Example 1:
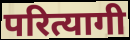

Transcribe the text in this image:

परित्यागी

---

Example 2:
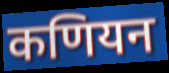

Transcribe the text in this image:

कणियन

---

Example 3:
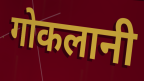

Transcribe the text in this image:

गोकलानी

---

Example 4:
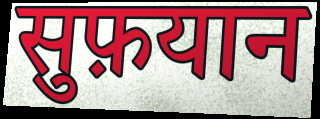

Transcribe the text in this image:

सुफ़यान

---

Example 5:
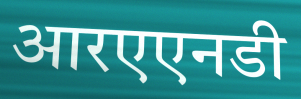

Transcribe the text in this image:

आरएएनडी